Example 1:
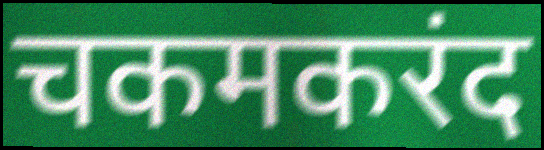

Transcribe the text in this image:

चकमकरंद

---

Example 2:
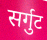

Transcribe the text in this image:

सर्गुट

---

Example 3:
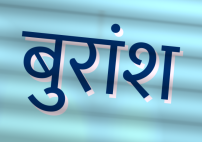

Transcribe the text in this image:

बुरांश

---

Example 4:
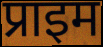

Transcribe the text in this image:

प्राइम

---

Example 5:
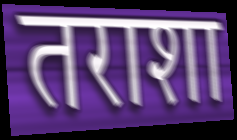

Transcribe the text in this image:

तराशा